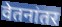
वेतनांतर